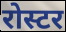
रोस्टर